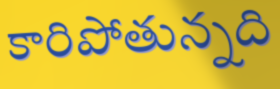
కారిపోతున్నది